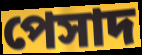
পেসাদ